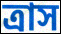
ত্রাস